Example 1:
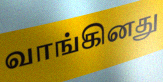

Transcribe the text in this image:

வாங்கினது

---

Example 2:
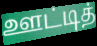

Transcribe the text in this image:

ஊட்டித்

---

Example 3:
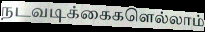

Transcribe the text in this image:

நடவடிக்கைகளெல்லாம்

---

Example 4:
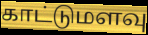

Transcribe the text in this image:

காட்டுமளவு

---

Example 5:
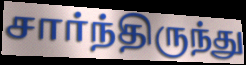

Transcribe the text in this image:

சார்ந்திருந்து